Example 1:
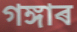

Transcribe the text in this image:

গঙ্গাৰ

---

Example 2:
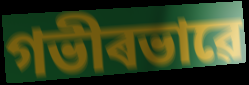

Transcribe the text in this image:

গভীৰভাৱে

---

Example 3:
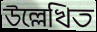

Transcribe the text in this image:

উল্লেখিত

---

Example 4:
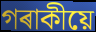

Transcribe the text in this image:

গৰাকীয়ে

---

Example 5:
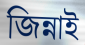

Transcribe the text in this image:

জিন্নাই